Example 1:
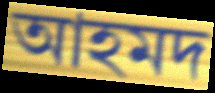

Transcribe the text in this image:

আহমদ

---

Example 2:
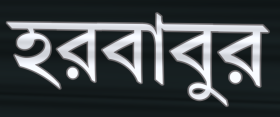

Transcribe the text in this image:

হরবাবুর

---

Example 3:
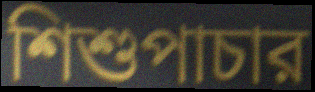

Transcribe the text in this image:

শিশুপাচার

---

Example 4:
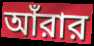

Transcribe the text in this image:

আঁরার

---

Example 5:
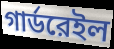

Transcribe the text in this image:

গার্ডরেইল